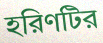
হরিণটির